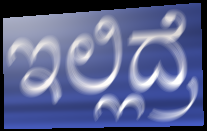
ಇಲ್ಲಿದ್ರೆ